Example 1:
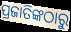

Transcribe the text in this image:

ପ୍ରଜାତିଙ୍କଠାରୁ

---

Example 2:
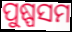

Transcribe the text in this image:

ପୁଷ୍ପସମ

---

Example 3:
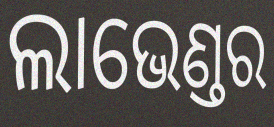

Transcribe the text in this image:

ଲାଭେଣ୍ଡର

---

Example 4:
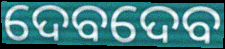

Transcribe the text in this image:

ଦେବଦେବ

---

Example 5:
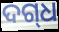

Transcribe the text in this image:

ଦଗ୍‍ଧ